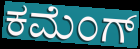
ಕಮೆಂಗ್